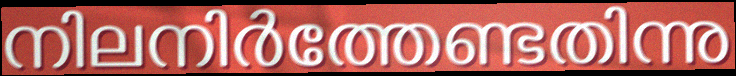
നിലനിർത്തേണ്ടതിന്നു